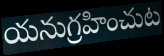
యనుగ్రహించుట